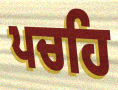
ਪਚਹਿ